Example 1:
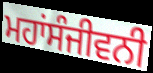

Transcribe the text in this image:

ਮਹਾਂਸੰਜੀਵਨੀ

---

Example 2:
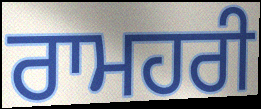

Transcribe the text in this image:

ਰਾਮਹਰੀ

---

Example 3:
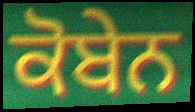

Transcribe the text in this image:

ਕੋਬੇਨ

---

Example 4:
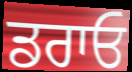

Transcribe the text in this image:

ਡਰਾਓ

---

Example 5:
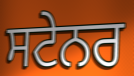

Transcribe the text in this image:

ਸਟੇਨਰ